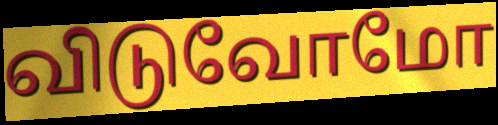
விடுவோமோ